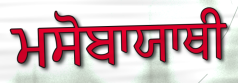
ਮਸੋਬਾਯਾਥੀ